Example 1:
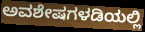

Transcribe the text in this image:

ಅವಶೇಷಗಳಡಿಯಲ್ಲಿ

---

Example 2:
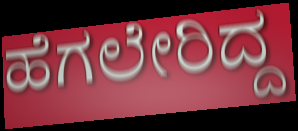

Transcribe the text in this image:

ಹೆಗಲೇರಿದ್ದ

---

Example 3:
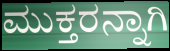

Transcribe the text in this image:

ಮುಕ್ತರನ್ನಾಗಿ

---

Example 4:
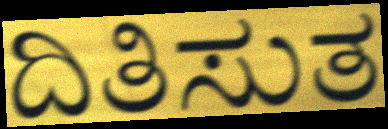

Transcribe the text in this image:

ದಿತಿಸುತ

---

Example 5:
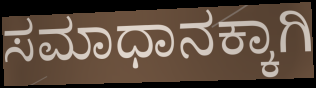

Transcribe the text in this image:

ಸಮಾಧಾನಕ್ಕಾಗಿ